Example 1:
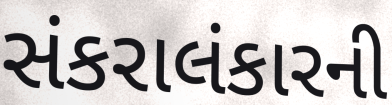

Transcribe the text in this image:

સંકરાલંકારની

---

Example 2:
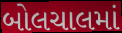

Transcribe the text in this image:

બોલચાલમાં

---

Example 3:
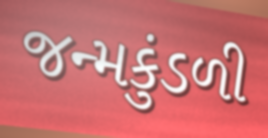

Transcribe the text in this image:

જન્મકુંડળી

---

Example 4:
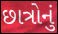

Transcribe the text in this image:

છાત્રોનું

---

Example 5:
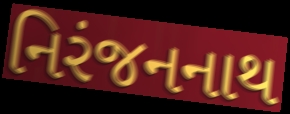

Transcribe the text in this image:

નિરંજનનાથ